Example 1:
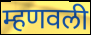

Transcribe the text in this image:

म्हणवली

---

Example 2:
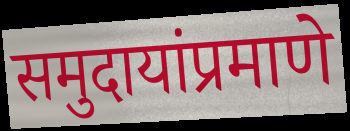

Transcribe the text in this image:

समुदायांप्रमाणे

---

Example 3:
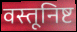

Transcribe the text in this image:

वस्तूनिष्ट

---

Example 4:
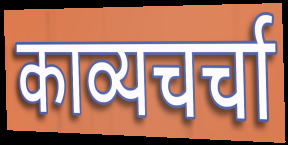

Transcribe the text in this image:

काव्यचर्चा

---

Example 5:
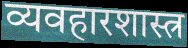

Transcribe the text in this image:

व्यवहारशास्त्र